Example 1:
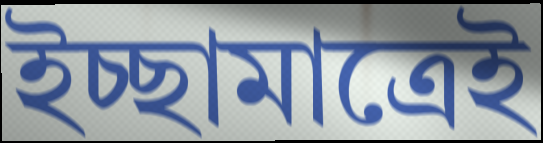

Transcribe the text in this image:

ইচ্ছামাত্রেই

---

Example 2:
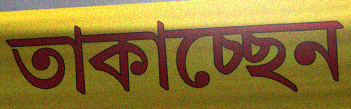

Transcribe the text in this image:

তাকাচ্ছেন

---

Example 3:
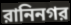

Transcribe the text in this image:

রানিনগর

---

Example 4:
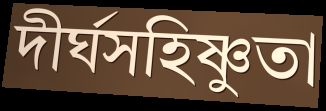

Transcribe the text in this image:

দীর্ঘসহিষ্ণুতা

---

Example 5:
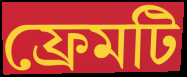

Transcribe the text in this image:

ফ্রেমটি